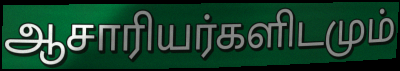
ஆசாரியர்களிடமும்